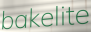
bakelite